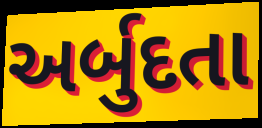
અર્બુદતા